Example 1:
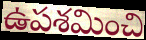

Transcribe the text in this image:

ఉపశమించి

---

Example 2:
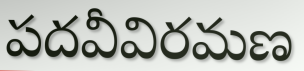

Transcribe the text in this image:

పదవీవిరమణ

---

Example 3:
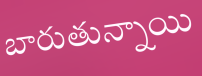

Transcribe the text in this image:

బారుతున్నాయి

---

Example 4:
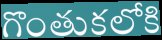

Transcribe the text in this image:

గొంతుకలోకి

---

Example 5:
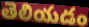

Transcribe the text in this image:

తెలియడం